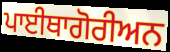
ਪਾਈਥਾਗੋਰੀਅਨ